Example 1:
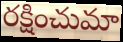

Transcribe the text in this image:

రక్షించుమా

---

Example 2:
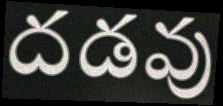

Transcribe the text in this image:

దడవు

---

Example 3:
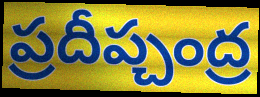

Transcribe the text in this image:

ప్రదీప్చంద్ర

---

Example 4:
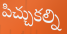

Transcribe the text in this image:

పిచ్చుకల్ని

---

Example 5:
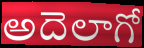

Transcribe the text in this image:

అదెలాగో